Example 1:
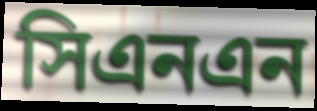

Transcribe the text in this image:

সিএনএন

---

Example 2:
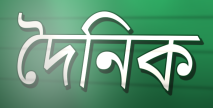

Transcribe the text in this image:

দৈনিক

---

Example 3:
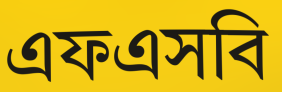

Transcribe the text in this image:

এফএসবি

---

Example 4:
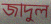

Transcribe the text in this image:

জাদুল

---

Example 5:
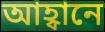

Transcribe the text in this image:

আহ্বানে